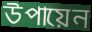
উপায়েন